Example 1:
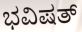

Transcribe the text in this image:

ಭವಿಷತ್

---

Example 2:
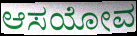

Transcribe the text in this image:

ಆಸಯೋವ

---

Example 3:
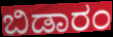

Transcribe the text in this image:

ಬಿಡಾರಂ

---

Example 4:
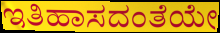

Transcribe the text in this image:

ಇತಿಹಾಸದಂತೆಯೇ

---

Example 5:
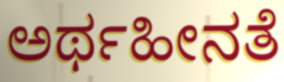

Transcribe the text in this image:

ಅರ್ಥಹೀನತೆ